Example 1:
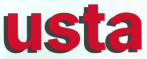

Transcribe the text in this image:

usta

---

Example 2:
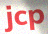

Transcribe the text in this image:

jcp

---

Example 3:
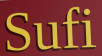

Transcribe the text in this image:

Sufi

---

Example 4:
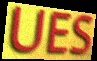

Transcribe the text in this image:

UES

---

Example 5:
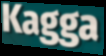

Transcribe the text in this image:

Kagga